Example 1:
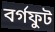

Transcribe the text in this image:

বৰ্গফুট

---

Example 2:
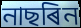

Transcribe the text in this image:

নাছৰিন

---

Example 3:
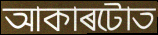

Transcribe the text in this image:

আকাৰটোত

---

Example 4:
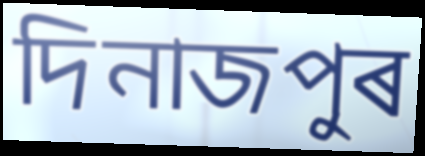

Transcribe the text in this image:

দিনাজপুৰ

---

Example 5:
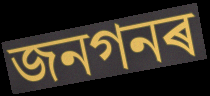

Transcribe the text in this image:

জনগনৰ